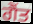
ਗੈਂਤ